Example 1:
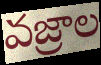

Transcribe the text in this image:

వజ్రాల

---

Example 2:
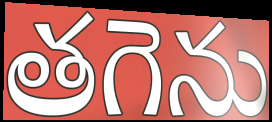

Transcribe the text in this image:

తగెను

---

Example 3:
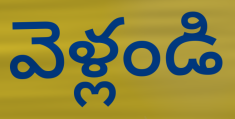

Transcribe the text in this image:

వెళ్లండి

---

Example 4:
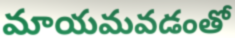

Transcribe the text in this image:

మాయమవడంతో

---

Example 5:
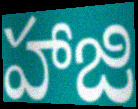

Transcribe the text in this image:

హాజి